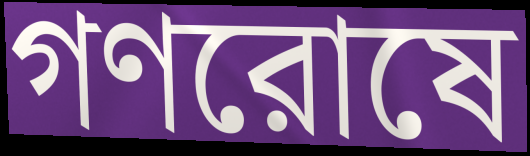
গণরোষে